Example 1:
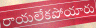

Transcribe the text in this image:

రాయలేకపోయారు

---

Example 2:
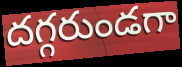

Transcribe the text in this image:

దగ్గరుండగా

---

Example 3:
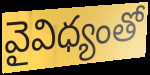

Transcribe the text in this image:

వైవిధ్యంతో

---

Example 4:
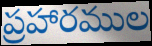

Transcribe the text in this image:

ప్రహారముల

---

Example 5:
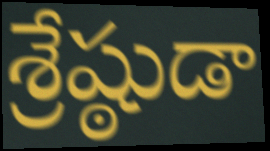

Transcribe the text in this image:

శ్రేష్ఠుడా